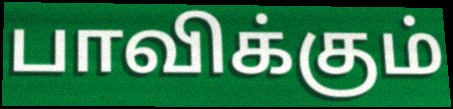
பாவிக்கும்